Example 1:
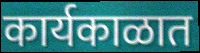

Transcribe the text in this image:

कार्यकाळात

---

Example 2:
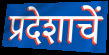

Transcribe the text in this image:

प्रदेशाचें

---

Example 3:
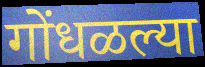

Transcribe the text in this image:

गोंधळल्या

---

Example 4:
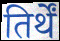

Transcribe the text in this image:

तिर्थें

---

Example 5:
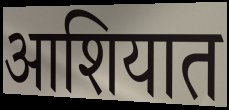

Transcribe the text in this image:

आशियात